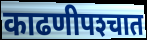
काढणीपश्‍चात